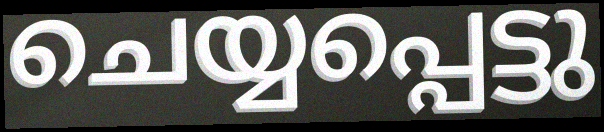
ചെയ്യപ്പെട്ടു